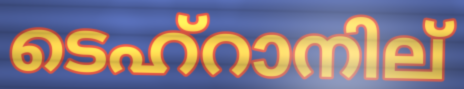
ടെഹ്റാനില്